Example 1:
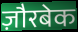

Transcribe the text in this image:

ज़ौरबेक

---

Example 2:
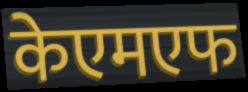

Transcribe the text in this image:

केएमएफ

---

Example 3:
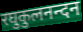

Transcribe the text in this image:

रघुकुलनन्दन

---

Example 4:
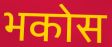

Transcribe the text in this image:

भकोस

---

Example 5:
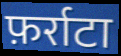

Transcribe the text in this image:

फ़र्राटा